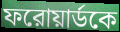
ফরোয়ার্ডকে